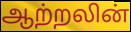
ஆற்றலின்